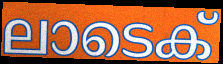
ലാടെക്